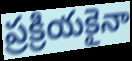
ప్రక్రియకైనా